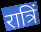
रात्रिं